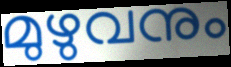
മുഴുവനും